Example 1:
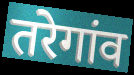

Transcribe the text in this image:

तरेगांव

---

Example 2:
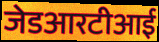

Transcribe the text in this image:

जेडआरटीआई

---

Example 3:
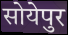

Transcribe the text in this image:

सोयेपुर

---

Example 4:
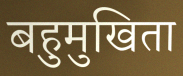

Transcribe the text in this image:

बहुमुखिता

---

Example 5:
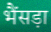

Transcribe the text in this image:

भैंसड़ा